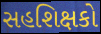
સહશિક્ષકો